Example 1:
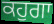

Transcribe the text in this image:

ਕਹੁਗਾ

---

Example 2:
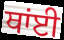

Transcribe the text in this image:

ਥਾਂਈ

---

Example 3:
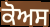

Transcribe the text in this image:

ਕੋਅਸ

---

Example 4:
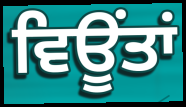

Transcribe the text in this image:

ਵਿਊਂਤਾਂ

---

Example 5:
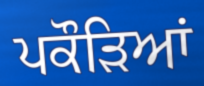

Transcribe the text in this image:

ਪਕੌਡ਼ਿਆਂ